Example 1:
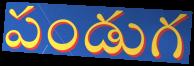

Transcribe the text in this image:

పండుగ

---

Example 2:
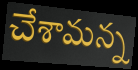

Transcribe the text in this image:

చేశామన్న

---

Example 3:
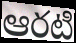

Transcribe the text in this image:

ఆరటి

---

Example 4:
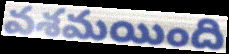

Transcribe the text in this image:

వశమయింది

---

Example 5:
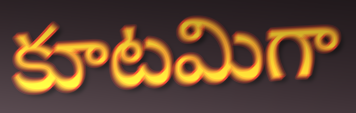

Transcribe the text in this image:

కూటమిగా